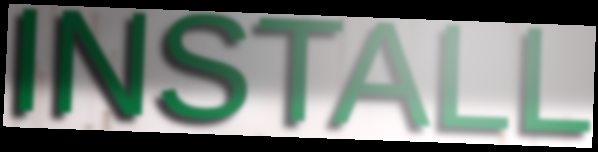
INSTALL